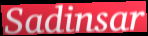
Sadinsar